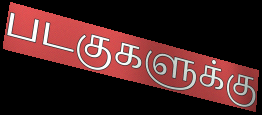
படகுகளுக்கு